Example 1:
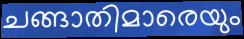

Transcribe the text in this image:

ചങ്ങാതിമാരെയും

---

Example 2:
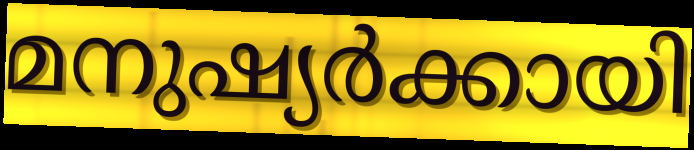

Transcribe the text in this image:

മനുഷ്യർക്കായി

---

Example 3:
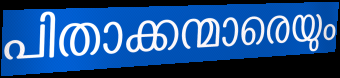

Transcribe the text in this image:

പിതാക്കന്മാരെയും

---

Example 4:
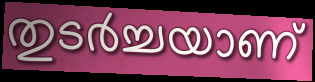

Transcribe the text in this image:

തുടർച്ചയാണ്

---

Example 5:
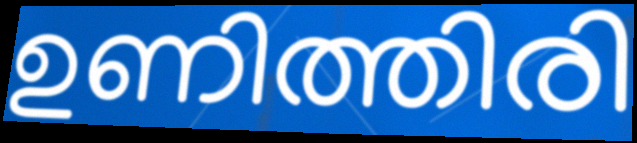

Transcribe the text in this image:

ഉണിത്തിരി